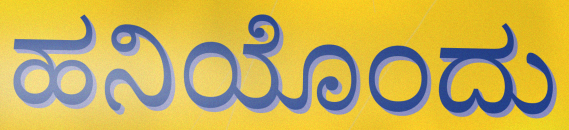
ಹನಿಯೊಂದು